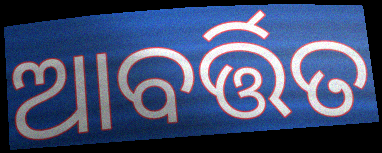
ଆବର୍ତ୍ତିତ